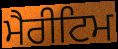
ਮੈਰੀਟਿਮ